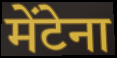
मेंटेना